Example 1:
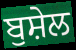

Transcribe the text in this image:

ਬੁਸ਼ੇਲ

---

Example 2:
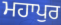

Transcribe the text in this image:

ਮਹਾਪੁਰ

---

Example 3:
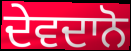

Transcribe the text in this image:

ਦੇਵਦਾਨੋ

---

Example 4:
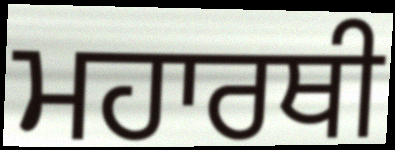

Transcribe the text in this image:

ਮਹਾਰਥੀ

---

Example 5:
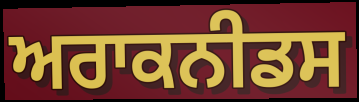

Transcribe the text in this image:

ਅਰਾਕਨੀਡਸ